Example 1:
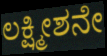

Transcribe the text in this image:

ಲಕ್ಷ್ಮೀಶನೇ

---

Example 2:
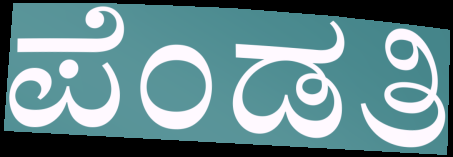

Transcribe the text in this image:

ಪೆಂಡತಿ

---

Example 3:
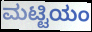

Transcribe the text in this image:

ಮಟ್ಟಿಯಂ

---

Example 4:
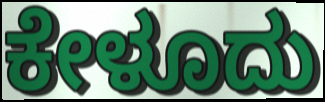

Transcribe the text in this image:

ಕೇಳೂದು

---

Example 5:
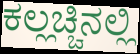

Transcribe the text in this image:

ಕಲ್ಲಚ್ಚಿನಲ್ಲಿ